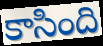
కాసింది